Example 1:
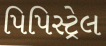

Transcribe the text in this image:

પિપિસ્ટ્રેલ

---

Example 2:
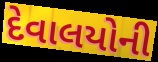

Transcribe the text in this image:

દેવાલયોની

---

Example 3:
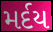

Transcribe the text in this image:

મર્દય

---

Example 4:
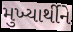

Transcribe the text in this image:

મુખ્યાર્થીને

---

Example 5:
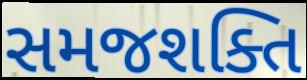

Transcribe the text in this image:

સમજશક્તિ